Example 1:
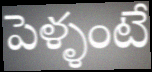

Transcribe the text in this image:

పెళ్ళంటే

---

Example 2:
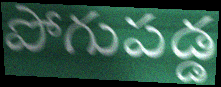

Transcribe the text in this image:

పోగుపడ్డ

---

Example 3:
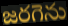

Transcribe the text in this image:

జరగెను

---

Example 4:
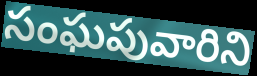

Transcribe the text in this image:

సంఘపువారిని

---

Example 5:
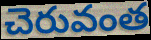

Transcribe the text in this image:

చెరువంత